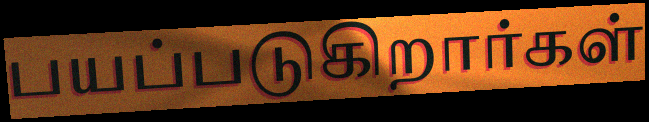
பயப்படுகிறார்கள்